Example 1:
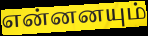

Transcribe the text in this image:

என்னனயும்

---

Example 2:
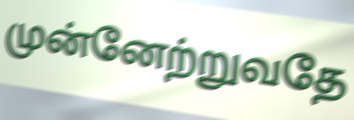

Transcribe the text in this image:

முன்னேற்றுவதே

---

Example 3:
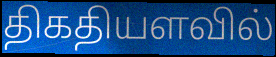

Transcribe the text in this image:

திகதியளவில்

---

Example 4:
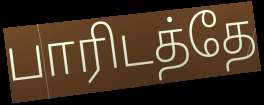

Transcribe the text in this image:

பாரிடத்தே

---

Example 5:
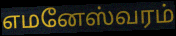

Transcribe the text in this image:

எமனேஸ்வரம்